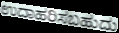
ಉದಾಹರಿಸಬಹುದು